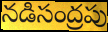
నడిసంద్రపు